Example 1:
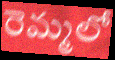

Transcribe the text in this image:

రెమ్మలో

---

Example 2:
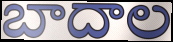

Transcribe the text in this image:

బాదాల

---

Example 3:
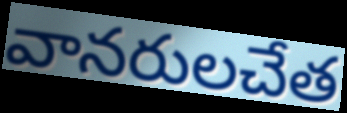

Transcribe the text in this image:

వానరులచేత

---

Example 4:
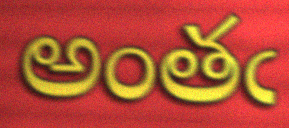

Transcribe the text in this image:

అంతఁ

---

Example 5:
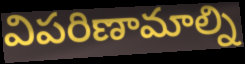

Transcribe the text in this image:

విపరిణామాల్ని